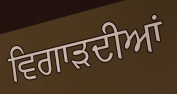
ਵਿਗਾੜਦੀਆਂ